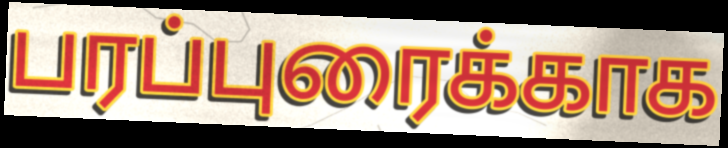
பரப்புரைக்காக